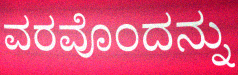
ವರವೊಂದನ್ನು